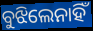
ବୁଝିଲେନାହିଁ